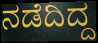
ನಡೆದಿದ್ದ